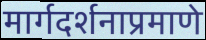
मार्गदर्शनाप्रमाणे